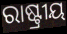
ରାଷ୍ଟ୍ରୀୟ